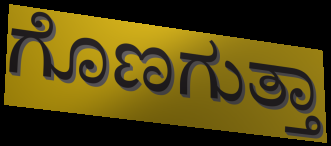
ಗೊಣಗುತ್ತಾ